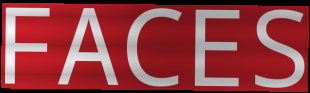
FACES